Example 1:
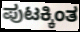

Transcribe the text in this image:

ಪುಟಕ್ಕಿಂತ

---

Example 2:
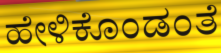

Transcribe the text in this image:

ಹೇಳಿಕೊಂಡಂತೆ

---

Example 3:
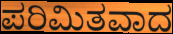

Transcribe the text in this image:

ಪರಿಮಿತವಾದ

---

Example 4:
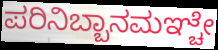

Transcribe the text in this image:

ಪರಿನಿಬ್ಬಾನಮಞ್ಚೇ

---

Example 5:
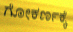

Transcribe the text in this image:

ಗೋಕರ್ಣಕ್ಕೆ